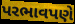
પરભાવપણે